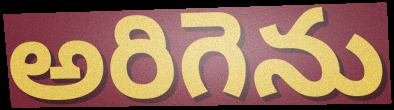
అరిగెను